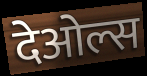
देओल्स